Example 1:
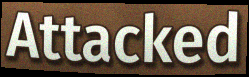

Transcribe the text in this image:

Attacked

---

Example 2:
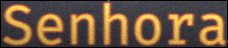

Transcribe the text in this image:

Senhora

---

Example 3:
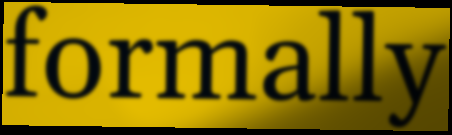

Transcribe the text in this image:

formally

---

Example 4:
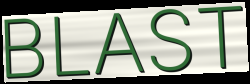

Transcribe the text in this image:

BLAST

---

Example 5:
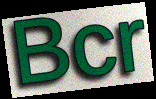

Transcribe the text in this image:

Bcr